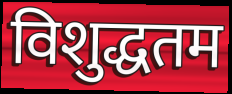
विशुद्धतम